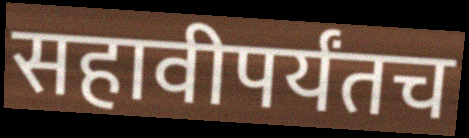
सहावीपर्यंतच